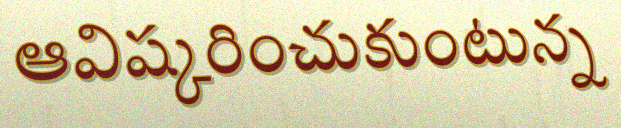
ఆవిష్కరించుకుంటున్న